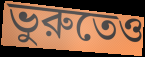
ভুরুতেও